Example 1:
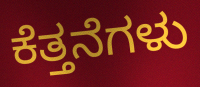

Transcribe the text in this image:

ಕೆತ್ತನೆಗಳು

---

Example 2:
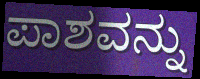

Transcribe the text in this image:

ಪಾಶವನ್ನು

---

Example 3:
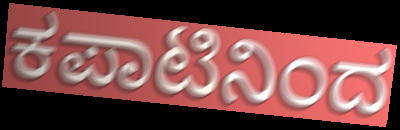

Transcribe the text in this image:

ಕಪಾಟಿನಿಂದ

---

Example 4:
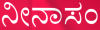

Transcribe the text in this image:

ನೀನಾಸಂ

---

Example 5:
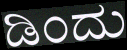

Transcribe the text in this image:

ಡಿಂದು